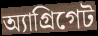
অ্যাগ্রিগেট